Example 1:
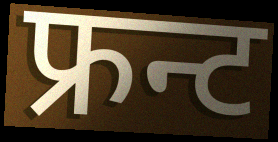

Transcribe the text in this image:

फ्रन्ट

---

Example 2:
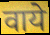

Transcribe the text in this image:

वाये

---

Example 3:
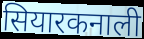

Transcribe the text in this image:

सियारकनाली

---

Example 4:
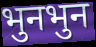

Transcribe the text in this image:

भुनभुन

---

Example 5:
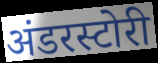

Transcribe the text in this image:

अंडरस्टोरी